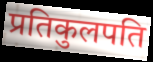
प्रतिकुलपति